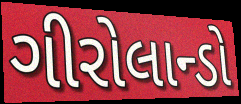
ગીરોલાન્ડો